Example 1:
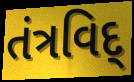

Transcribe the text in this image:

તંત્રવિદ્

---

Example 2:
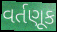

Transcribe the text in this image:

વર્તણૂક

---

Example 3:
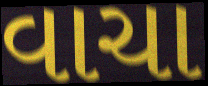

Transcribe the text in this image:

વાચા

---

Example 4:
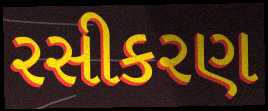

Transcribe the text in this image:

રસીકરણ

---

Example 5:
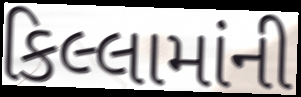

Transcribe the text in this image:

કિલ્લામાંની